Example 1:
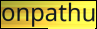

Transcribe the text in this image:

onpathu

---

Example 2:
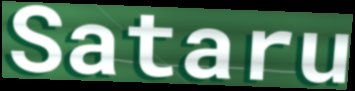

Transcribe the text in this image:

Sataru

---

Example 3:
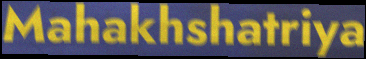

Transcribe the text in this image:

Mahakhshatriya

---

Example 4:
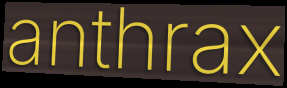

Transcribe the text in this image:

anthrax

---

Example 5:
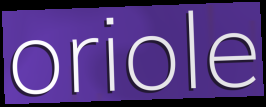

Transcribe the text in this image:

oriole